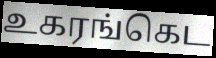
உகரங்கெட